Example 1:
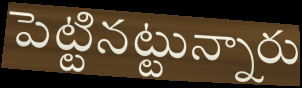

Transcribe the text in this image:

పెట్టినట్టున్నారు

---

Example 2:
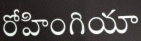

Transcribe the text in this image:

రోహింగియా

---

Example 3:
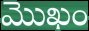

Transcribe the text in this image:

మొఖం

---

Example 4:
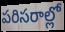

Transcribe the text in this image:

పరిసరాల్లో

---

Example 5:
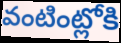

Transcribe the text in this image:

వంటింట్లోకి